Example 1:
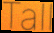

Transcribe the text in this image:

Tall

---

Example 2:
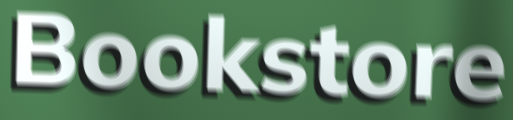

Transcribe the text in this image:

Bookstore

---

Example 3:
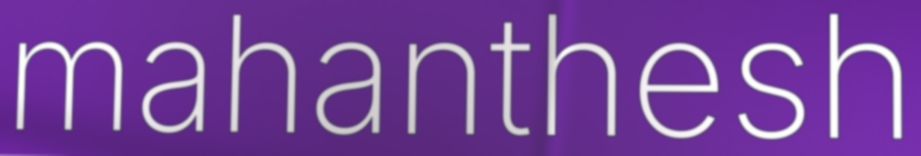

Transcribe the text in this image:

mahanthesh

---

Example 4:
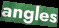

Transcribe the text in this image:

angles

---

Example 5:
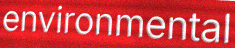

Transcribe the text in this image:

environmental